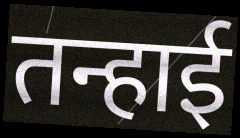
तन्हाई